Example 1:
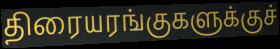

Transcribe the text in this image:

திரையரங்குகளுக்குச்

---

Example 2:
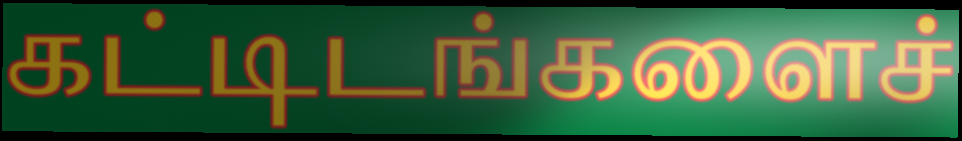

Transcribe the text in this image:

கட்டிடங்களைச்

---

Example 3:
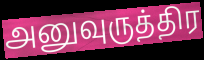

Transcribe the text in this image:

அனுவுருத்திர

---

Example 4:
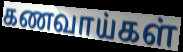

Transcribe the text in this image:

கணவாய்கள்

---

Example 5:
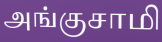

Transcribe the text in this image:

அங்குசாமி